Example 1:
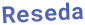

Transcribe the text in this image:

Reseda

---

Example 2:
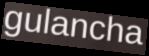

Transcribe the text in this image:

gulancha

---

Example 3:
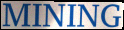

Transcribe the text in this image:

MINING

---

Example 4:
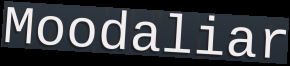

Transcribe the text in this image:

Moodaliar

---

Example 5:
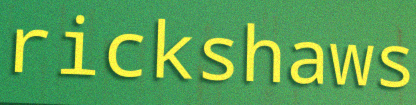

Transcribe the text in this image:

rickshaws